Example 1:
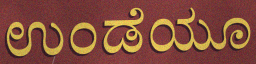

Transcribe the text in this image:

ಉಂಡೆಯೂ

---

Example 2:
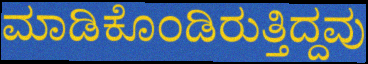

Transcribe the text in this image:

ಮಾಡಿಕೊಂಡಿರುತ್ತಿದ್ದವು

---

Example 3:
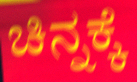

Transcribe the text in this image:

ಚಿನ್ನಕ್ಕೆ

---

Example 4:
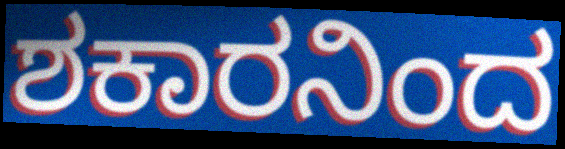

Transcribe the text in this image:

ಶಕಾರನಿಂದ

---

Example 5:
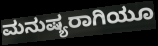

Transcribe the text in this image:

ಮನುಷ್ಯರಾಗಿಯೂ